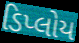
ડિપ્લોય